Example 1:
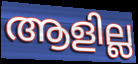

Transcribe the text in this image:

ആളില്ല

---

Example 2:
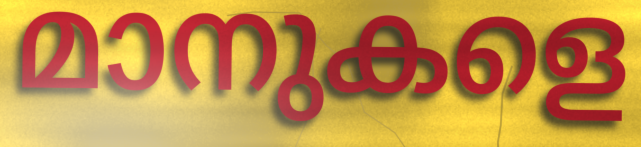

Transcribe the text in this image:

മാനുകളെ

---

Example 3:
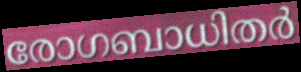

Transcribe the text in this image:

രോഗബാധിതർ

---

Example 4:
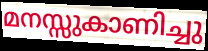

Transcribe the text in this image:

മനസ്സുകാണിച്ചു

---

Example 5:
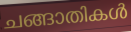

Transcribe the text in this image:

ചങ്ങാതികൾ